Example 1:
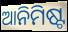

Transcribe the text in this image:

ଆନିମିଷ୍ଟ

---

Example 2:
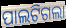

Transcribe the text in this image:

ପାଲଟିଗଲା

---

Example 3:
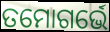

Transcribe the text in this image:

ତମୋଗର୍ଭେ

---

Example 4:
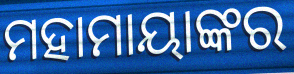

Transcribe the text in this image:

ମହାମାୟାଙ୍କର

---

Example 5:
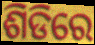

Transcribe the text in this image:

ଶିଡିରେ